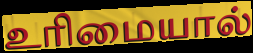
உரிமையால்